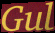
Gul